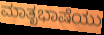
ಮಾತೃಭಾಷೆಯು